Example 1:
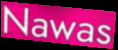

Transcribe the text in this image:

Nawas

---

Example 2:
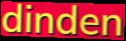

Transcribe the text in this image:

dinden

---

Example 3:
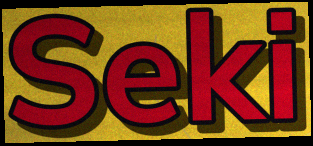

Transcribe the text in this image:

Seki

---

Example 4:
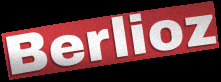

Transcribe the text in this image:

Berlioz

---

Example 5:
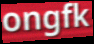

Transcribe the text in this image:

ongfk